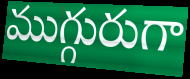
ముగ్గురుగా